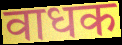
वाधक